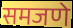
समजणे